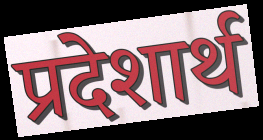
प्रदेशार्थ